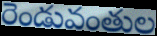
రెండువంతుల